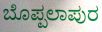
ಬೊಪ್ಪಲಾಪುರ